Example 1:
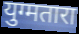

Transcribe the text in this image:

युग्मतारा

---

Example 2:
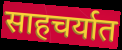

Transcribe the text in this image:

साहचर्यात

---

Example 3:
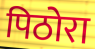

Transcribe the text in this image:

पिठोरा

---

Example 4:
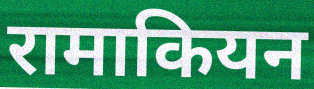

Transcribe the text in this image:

रामाकियन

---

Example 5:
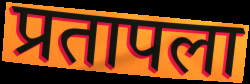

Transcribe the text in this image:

प्रतापला